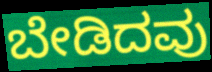
ಬೇಡಿದವು